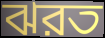
ঝরত